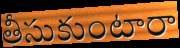
తీసుకుంటారా